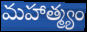
మహాత్మ్యం